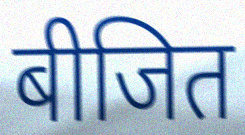
बीजित